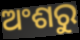
ଅଂଶରୁ